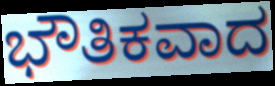
ಭೌತಿಕವಾದ